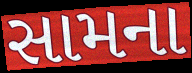
સામના